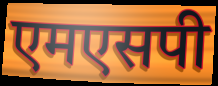
एमएसपी